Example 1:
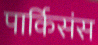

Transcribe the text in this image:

पार्किसंस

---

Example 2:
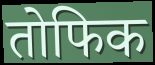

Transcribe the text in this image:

तोफिक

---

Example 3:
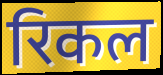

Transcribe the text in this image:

रिकल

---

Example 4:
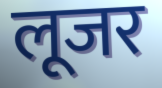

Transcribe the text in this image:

लूजर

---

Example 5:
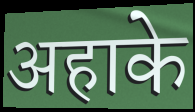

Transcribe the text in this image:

अहाके